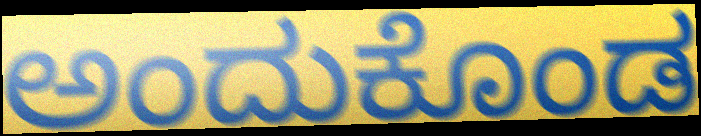
ಅಂದುಕೊಂಡ